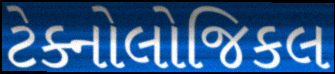
ટેક્નોલોજિકલ